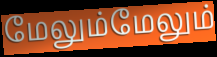
மேலும்மேலும்